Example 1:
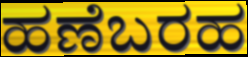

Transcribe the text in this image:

ಹಣೆಬರಹ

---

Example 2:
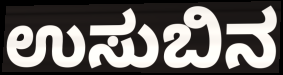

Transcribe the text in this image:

ಉಸುಬಿನ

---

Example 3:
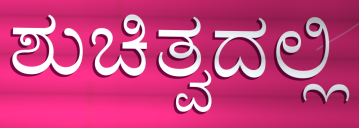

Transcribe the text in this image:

ಶುಚಿತ್ವದಲ್ಲಿ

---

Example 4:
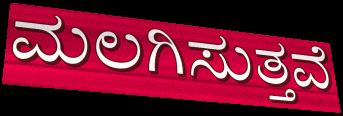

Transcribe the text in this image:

ಮಲಗಿಸುತ್ತವೆ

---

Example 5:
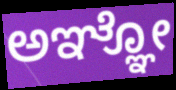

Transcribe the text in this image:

ಅಞ್ಞೋ